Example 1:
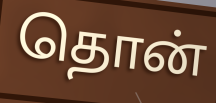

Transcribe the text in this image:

தொன்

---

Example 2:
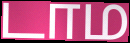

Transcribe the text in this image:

டாம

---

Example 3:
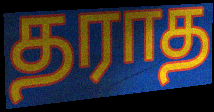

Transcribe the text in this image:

தராத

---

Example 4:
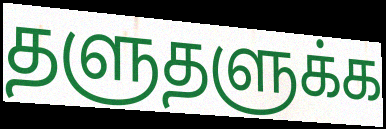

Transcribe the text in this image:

தளுதளுக்க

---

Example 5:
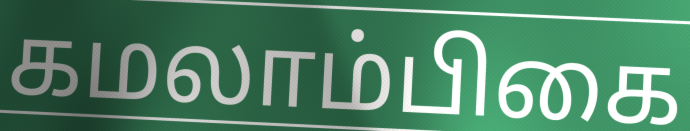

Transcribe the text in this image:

கமலாம்பிகை